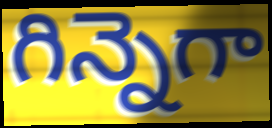
గిన్నెగా